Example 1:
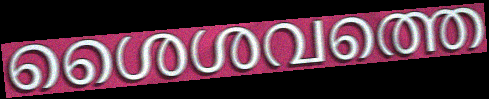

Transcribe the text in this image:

ശൈശവത്തെ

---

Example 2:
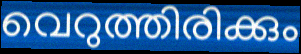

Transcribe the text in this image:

വെറുത്തിരിക്കും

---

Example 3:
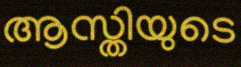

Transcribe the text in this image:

ആസ്തിയുടെ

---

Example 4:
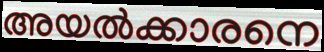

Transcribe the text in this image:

അയൽക്കാരനെ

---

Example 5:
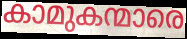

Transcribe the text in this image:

കാമുകന്മാരെ